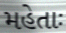
મહેતાઃ